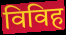
विविह